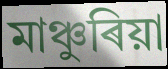
মাঞ্চুৰিয়া